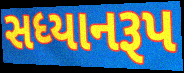
સધ્યાનરૂપ